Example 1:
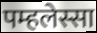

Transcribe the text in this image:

पम्हलेस्सा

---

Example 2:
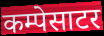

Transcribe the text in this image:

कम्पेसाटर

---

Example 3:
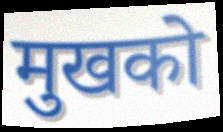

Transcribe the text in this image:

मुखको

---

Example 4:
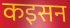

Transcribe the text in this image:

कइसन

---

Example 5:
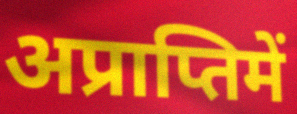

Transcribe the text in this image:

अप्राप्तिमें